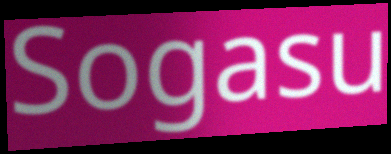
Sogasu